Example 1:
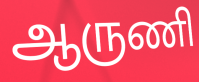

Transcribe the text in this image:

ஆருணி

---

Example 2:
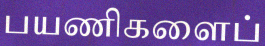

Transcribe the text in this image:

பயணிகளைப்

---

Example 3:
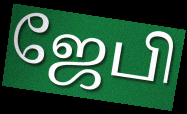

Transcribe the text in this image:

ஜேபி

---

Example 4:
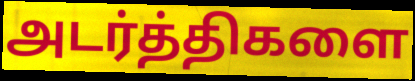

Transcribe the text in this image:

அடர்த்திகளை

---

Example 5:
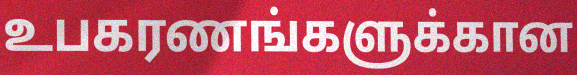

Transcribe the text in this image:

உபகரணங்களுக்கான